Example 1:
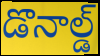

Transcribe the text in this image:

డొనాల్డ్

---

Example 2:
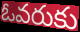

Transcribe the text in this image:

ఓవరుకు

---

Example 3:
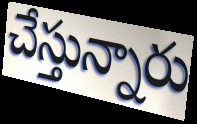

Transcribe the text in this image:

చేస్తున్నారు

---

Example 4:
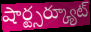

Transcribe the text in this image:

షార్ట్సర్క్యూట్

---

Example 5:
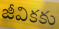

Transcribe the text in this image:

జీవికకు